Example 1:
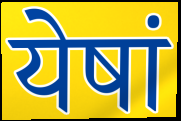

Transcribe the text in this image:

येषां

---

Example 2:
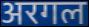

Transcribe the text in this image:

अरगल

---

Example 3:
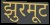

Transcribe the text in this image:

झुरमूट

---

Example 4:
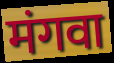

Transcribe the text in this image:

मंगवा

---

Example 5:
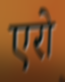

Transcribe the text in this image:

एरो